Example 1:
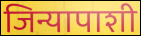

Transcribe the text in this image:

जिन्यापाशी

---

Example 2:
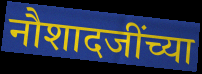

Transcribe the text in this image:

नौशादजींच्या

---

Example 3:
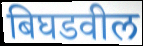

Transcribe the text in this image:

बिघडवील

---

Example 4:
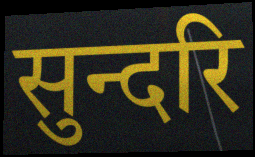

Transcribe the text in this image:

सुन्दरि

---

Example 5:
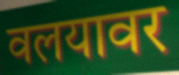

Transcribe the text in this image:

वलयावर